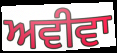
ਅਵੀਵਾ